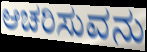
ಆಚರಿಸುವನು